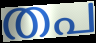
തപ